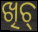
ଖିଚ୍